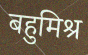
बहुमिश्र